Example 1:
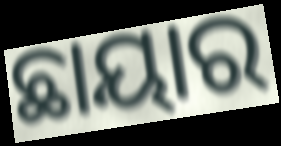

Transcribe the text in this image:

ଛାୟାର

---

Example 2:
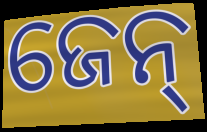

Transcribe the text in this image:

ଜେନ୍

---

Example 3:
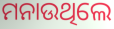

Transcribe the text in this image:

ମନାଉଥିଲେ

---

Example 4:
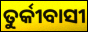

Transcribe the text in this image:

ତୁର୍କୀବାସୀ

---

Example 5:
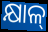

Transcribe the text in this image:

କ୍ଷାଳ୍